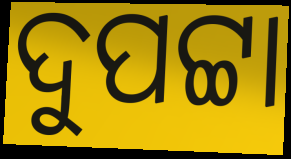
ଦୁପଟ୍ଟା